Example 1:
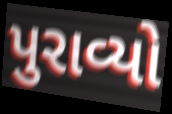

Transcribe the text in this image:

પુરાવ્યો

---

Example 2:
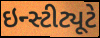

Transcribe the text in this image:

ઇન્સ્ટીટ્યૂટે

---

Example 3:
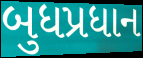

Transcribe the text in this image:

બુધપ્રધાન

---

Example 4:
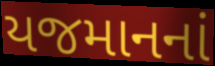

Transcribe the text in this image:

યજમાનનાં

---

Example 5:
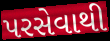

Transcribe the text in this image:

પરસેવાથી